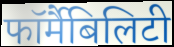
फॉर्मैबिलिटी